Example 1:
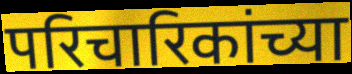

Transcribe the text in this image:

परिचारिकांच्या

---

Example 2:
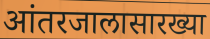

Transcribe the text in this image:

आंतरजालासारख्या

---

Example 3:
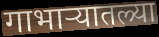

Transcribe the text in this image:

गाभाऱ्यातल्या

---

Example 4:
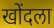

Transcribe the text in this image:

खोंदला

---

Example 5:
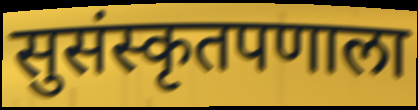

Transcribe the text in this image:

सुसंस्कृतपणाला